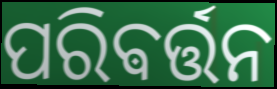
ପରିଵର୍ତ୍ତନ